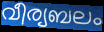
വീര്യബലം